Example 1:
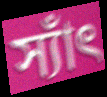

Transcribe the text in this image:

স্যাঁৎ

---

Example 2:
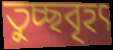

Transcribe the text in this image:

তুচ্ছবৃহৎ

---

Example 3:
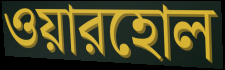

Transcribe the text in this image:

ওয়ারহোল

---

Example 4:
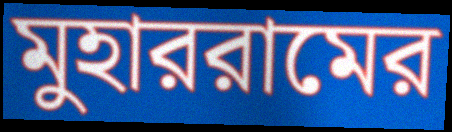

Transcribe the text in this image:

মুহাররামের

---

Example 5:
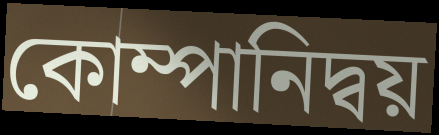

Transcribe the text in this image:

কোম্পানিদ্বয়